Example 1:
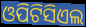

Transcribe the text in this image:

ଓପିଟିସିଏଲ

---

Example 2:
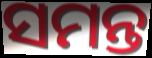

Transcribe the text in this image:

ସମନ୍ତ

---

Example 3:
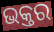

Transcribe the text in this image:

ଭକ୍ତର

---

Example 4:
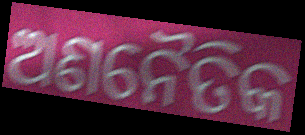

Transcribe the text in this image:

ଅଣନୈତିକ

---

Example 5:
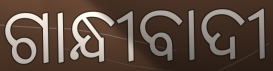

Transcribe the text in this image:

ଗାନ୍ଧୀବାଦୀ